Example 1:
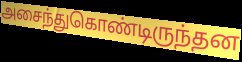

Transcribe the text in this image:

அசைந்துகொண்டிருந்தன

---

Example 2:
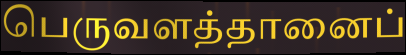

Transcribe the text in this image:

பெருவளத்தானைப்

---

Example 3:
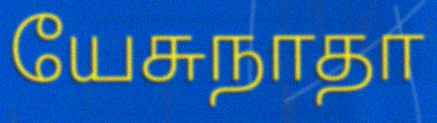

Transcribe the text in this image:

யேசுநாதா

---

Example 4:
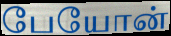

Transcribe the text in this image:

பேயோன்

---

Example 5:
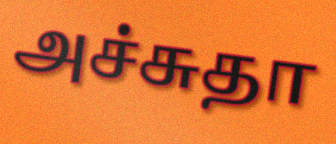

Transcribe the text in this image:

அச்சுதா